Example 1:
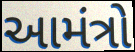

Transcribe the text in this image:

આમંત્રો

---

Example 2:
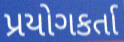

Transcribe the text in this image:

પ્રયોગકર્તા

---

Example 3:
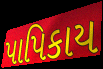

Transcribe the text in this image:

પાપિકાય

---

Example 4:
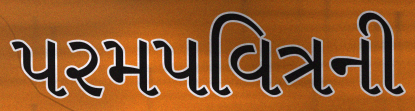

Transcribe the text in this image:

પરમપવિત્રની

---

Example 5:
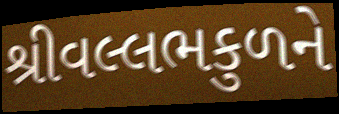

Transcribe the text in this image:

શ્રીવલ્લભકુળને